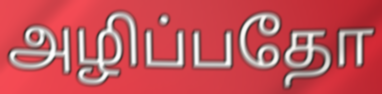
அழிப்பதோ